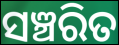
ସଞ୍ଚରିତ